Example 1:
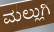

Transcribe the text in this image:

ಮಲ್ಲುಗಿ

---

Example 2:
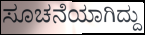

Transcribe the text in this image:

ಸೂಚನೆಯಾಗಿದ್ದು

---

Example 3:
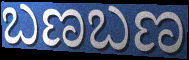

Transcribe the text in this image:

ಬಣಬಣ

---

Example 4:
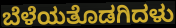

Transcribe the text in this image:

ಬೆಳೆಯತೊಡಗಿದಳು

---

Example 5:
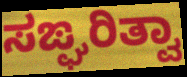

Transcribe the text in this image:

ಸಙ್ಘರಿತ್ವಾ